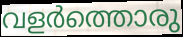
വളർത്തൊരു